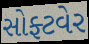
સોફ્ટવેર